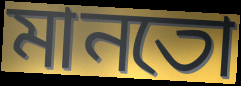
মানতো